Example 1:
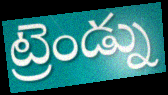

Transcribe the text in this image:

ట్రెండ్ను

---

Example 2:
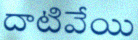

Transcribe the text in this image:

దాటివేయి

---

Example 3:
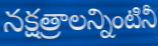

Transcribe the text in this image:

నక్షత్రాలన్నింటినీ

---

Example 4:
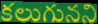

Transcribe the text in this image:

కలుగునని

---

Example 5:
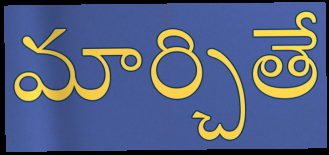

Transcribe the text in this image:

మార్చితే